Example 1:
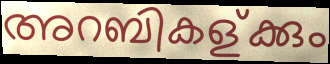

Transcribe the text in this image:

അറബികള്ക്കും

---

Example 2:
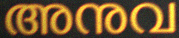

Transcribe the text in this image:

അനുവ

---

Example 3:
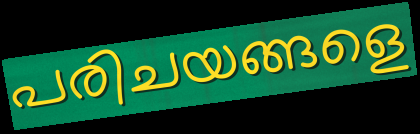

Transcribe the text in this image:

പരിചയങ്ങളെ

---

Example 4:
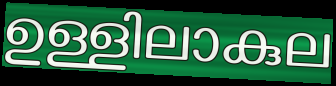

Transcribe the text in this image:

ഉള്ളിലാകുല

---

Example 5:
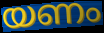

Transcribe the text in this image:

യണം